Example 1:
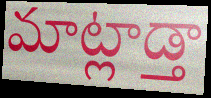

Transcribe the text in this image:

మాట్లాడ్తా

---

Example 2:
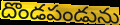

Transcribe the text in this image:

దొండపండును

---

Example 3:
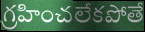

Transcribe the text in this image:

గ్రహించలేకపోతే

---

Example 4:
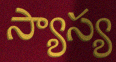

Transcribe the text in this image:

స్యాస్య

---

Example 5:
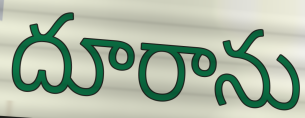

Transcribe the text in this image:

దూరాను